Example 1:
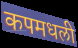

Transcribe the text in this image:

कपमधली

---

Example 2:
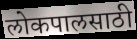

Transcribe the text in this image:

लोकपालसाठी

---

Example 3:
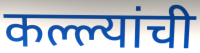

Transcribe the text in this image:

कल्ल्यांची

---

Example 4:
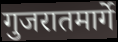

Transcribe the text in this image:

गुजरातमार्गे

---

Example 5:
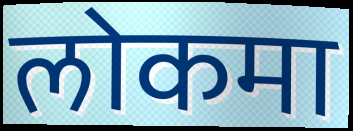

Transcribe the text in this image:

लोकमा